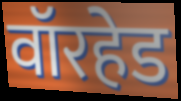
वॉरहेड